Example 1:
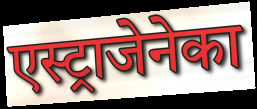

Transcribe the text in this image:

एस्‍ट्राजेनेका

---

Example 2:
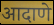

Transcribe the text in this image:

आदाणे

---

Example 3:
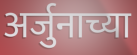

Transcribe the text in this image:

अर्जुनाच्या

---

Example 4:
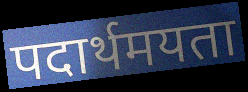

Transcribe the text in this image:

पदार्थमयता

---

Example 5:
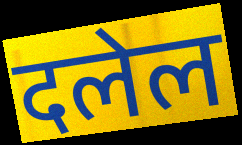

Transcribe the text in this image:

दलेल